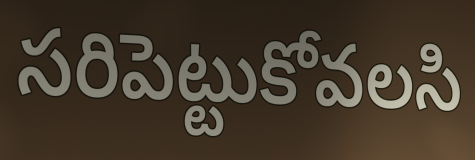
సరిపెట్టుకోవలసి